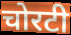
चोरटी